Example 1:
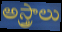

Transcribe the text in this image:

అస్త్రాలు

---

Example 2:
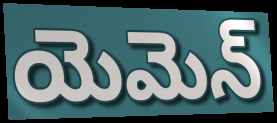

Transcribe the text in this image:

యెమెన్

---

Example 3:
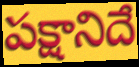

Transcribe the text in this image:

పక్షానిదే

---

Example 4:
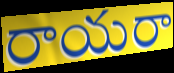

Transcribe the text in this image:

రాయరా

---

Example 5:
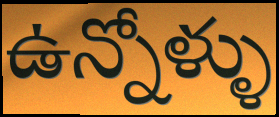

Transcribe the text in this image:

ఉన్నోళ్ళు